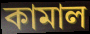
কামাল